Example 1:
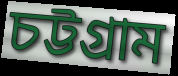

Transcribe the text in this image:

চট্টগ্রাম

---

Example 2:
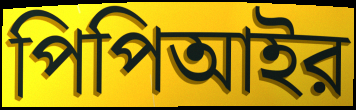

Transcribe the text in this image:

পিপিআইর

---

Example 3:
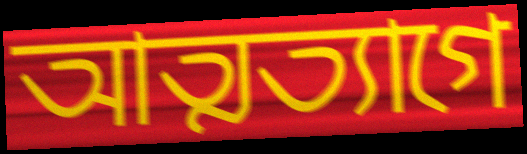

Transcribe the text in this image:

আত্মত্যাগে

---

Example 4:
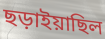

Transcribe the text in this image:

ছড়াইয়াছিল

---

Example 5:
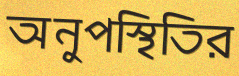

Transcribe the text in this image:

অনুপস্থিতির